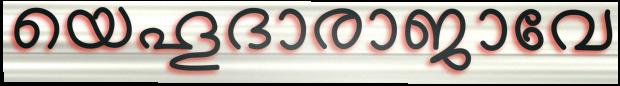
യെഹൂദാരാജാവേ